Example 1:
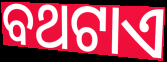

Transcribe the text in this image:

ବଥଟାଏ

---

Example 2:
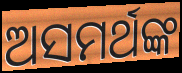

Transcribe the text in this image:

ଅସମର୍ଥଙ୍କ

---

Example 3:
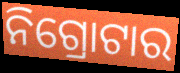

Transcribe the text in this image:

ନିଗ୍ରୋଟାର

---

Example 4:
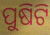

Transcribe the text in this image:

ପୁଷିଟି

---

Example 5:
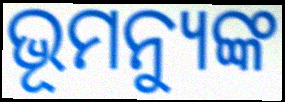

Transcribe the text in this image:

ଭୂମନ୍ୟୁଙ୍କ